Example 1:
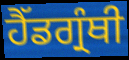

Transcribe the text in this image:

ਹੈੱਡਗ੍ਰੰਥੀ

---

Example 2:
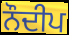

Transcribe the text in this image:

ਨੌਦੀਪ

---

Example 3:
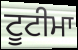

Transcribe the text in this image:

ਟੂਟੀਮਾ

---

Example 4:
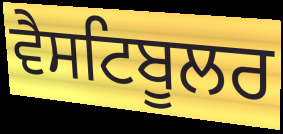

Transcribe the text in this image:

ਵੈਸਟਿਬੂਲਰ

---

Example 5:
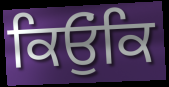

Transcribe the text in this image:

ਕਿਓੁਂਕਿ